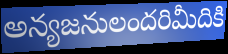
అన్యజనులందరిమీదికి